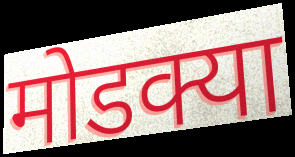
मोडक्या